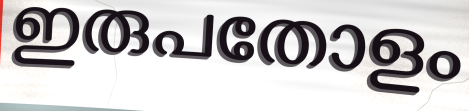
ഇരുപതോളം